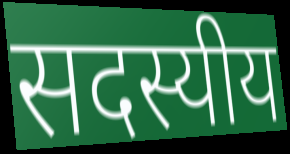
सदस्यीय